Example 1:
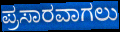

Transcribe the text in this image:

ಪ್ರಸಾರವಾಗಲು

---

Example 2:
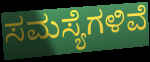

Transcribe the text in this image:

ಸಮಸ್ಯೆಗಳಿವೆ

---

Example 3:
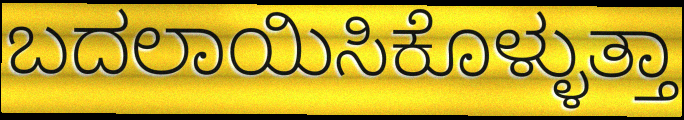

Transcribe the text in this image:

ಬದಲಾಯಿಸಿಕೊಳ್ಳುತ್ತಾ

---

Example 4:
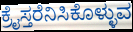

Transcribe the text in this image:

ಕ್ರೈಸ್ತರೆನಿಸಿಕೊಳ್ಳುವ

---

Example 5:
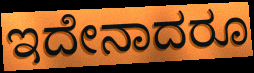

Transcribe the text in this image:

ಇದೇನಾದರೂ